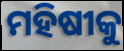
ମହିଷୀକୁ